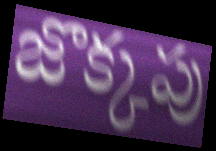
జొక్కపు